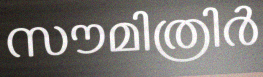
സൗമിത്രിർ